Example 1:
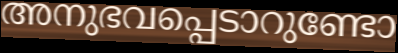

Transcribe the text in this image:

അനുഭവപ്പെടാറുണ്ടോ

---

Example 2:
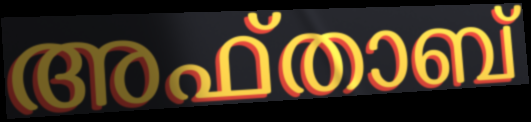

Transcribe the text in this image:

അഫ്താബ്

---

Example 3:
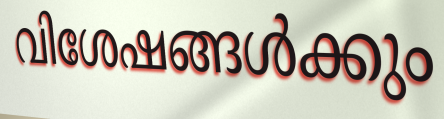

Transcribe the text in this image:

വിശേഷങ്ങൾക്കും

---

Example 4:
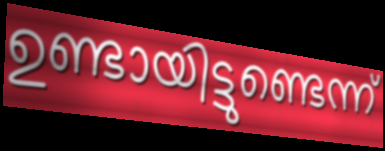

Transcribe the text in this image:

ഉണ്ടായിട്ടുണ്ടെന്ന്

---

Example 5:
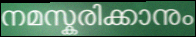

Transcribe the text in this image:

നമസ്കരിക്കാനും